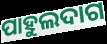
ପାହୁଲଦାଗ